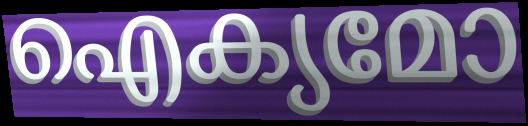
ഐക്യമോ